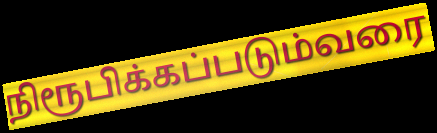
நிரூபிக்கப்படும்வரை